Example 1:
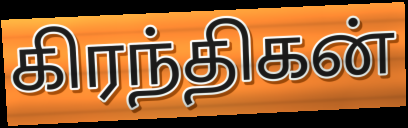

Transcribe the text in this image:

கிரந்திகன்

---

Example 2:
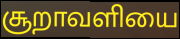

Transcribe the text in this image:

சூறாவளியை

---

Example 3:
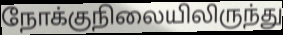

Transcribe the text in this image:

நோக்குநிலையிலிருந்து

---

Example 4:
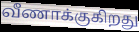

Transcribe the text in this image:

வீணாக்குகிறது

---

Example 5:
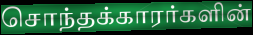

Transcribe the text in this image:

சொந்தக்காரர்களின்